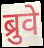
ब्रुवे